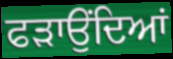
ਫੜਾਉਂਦਿਆਂ